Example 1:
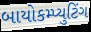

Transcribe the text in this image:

બાયોકમ્પ્યુટિંગ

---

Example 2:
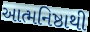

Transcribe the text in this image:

આત્મનિષ્ઠાથી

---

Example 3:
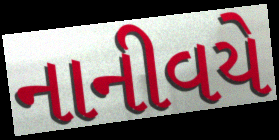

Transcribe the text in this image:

નાનીવયે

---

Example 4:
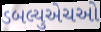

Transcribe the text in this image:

ડબલ્યુએચઓ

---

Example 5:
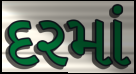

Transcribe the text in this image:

દરમાં